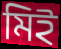
মিই